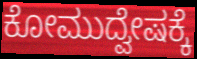
ಕೋಮುದ್ವೇಷಕ್ಕೆ